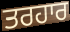
ਤਰਹਾਰ